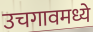
उचगावमध्ये